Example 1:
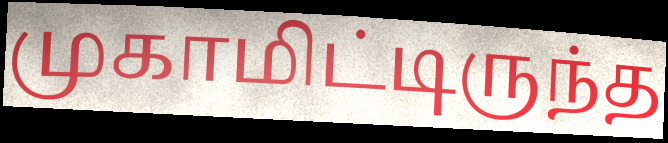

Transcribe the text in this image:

முகாமிட்டிருந்த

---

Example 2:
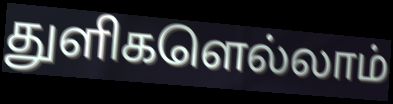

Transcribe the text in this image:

துளிகளெல்லாம்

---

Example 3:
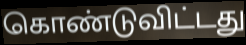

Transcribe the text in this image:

கொண்டுவிட்டது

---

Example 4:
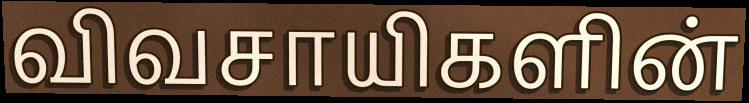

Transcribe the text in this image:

விவசாயிகளின்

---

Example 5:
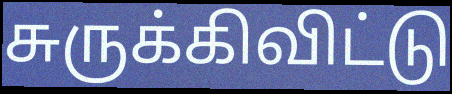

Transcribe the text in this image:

சுருக்கிவிட்டு